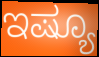
ಇಷ್ಯೂ